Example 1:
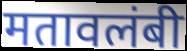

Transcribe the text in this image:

मतावलंबी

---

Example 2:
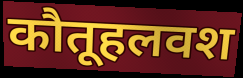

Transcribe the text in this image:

कौतूहलवश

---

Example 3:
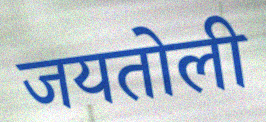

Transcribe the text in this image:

जयतोली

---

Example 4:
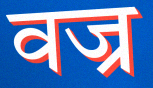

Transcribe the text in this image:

वज्र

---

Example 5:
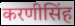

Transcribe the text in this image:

करणीसिंह